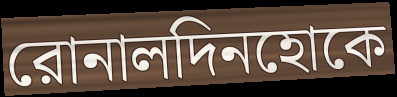
রোনালদিনহোকে